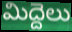
మిద్దెలు